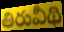
తిరువీథి